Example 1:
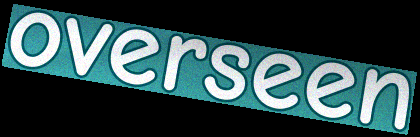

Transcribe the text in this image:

overseen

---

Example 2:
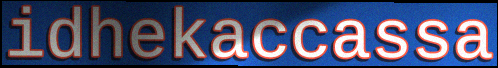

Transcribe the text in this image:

idhekaccassa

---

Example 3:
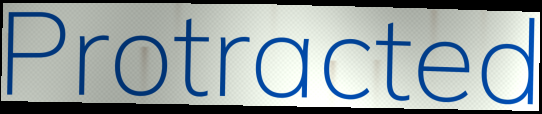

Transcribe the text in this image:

Protracted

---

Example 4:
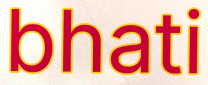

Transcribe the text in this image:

bhati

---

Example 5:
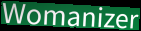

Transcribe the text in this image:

Womanizer